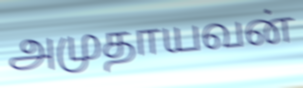
அமுதாயவன்